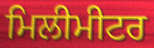
ਮਿਲੀਮੀਟਰ